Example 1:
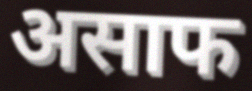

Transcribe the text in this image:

असाफ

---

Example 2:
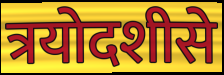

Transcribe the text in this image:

त्रयोदशीसे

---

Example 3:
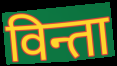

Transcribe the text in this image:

विन्ता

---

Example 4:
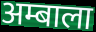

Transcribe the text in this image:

अम्बाला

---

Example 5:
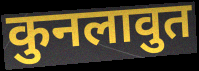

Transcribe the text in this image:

कुनलावुत